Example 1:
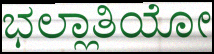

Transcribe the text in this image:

ಭಲ್ಲಾತಿಯೋ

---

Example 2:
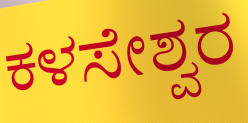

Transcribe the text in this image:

ಕಳಸೇಶ್ವರ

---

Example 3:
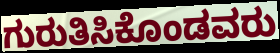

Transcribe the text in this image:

ಗುರುತಿಸಿಕೊಂಡವರು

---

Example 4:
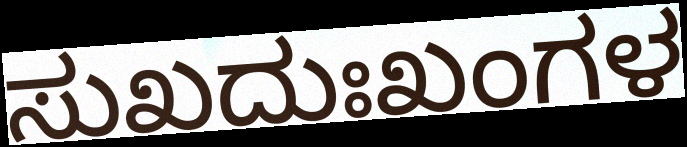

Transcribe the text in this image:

ಸುಖದುಃಖಂಗಳ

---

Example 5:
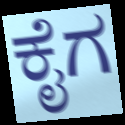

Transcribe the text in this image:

ಕೈಗ